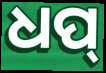
ଧପ୍